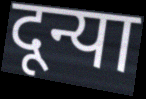
दून्या